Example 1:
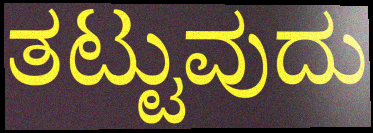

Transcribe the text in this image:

ತಟ್ಟುವುದು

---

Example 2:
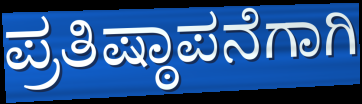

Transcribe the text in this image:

ಪ್ರತಿಷ್ಠಾಪನೆಗಾಗಿ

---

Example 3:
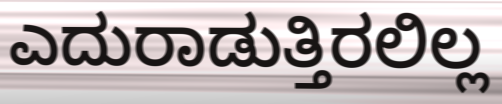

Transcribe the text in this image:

ಎದುರಾಡುತ್ತಿರಲಿಲ್ಲ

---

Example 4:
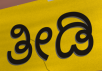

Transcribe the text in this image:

ತೀಡಿ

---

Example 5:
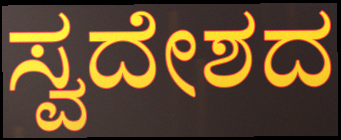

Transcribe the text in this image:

ಸ್ವದೇಶದ